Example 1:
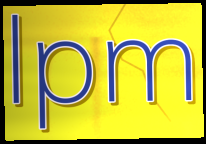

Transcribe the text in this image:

lpm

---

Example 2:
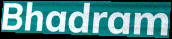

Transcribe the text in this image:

Bhadram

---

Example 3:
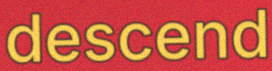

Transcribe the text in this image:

descend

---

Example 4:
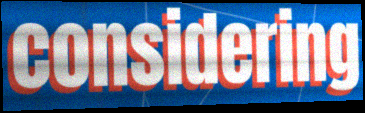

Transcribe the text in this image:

considering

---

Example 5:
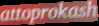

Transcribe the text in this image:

attoprokash